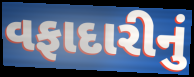
વફાદારીનું